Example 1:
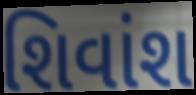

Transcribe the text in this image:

શિવાંશ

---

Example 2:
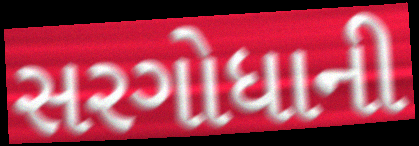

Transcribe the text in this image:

સરગોધાની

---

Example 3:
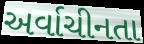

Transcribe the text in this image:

અર્વાચીનતા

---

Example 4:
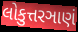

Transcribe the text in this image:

લોકુત્તરઞાણં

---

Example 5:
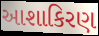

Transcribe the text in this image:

આશાકિરણ